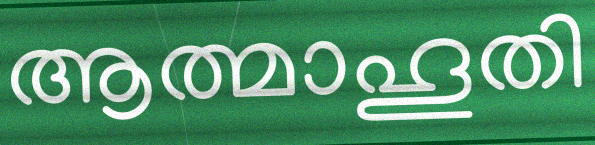
ആത്മാഹൂതി